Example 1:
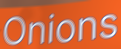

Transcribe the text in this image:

Onions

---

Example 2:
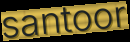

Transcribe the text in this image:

santoor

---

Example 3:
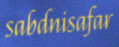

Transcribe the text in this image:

sabdnisafar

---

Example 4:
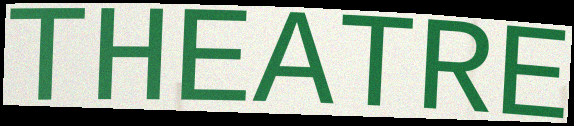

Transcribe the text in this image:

THEATRE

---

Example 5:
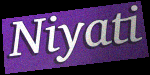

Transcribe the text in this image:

Niyati